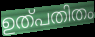
ഉത്പതിതം